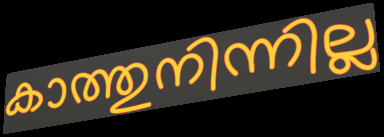
കാത്തുനിന്നില്ല